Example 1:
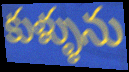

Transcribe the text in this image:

కుళ్ళును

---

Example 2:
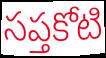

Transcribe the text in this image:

సప్తకోటి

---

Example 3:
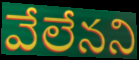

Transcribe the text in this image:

వేలేనని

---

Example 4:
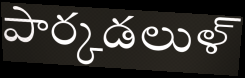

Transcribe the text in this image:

పార్కడలుళ్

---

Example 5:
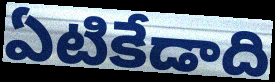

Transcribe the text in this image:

ఏటికేడాది